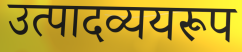
उत्पादव्ययरूप